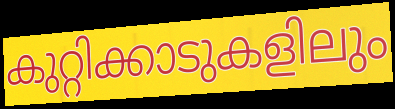
കുറ്റിക്കാടുകളിലും